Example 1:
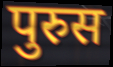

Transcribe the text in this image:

पुरुस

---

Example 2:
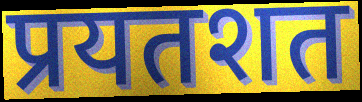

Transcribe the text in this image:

प्रयतशत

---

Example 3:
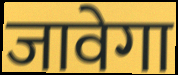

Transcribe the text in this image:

जावेगा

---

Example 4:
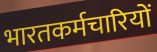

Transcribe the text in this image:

भारतकर्मचारियों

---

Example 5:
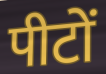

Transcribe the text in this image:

पीटों